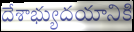
దేశాభ్యుదయానికి